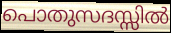
പൊതുസദസ്സിൽ